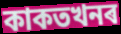
কাকতখনৰ